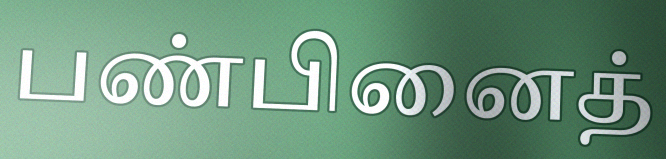
பண்பினைத்